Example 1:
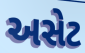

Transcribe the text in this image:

અસેટ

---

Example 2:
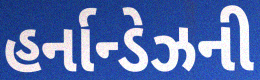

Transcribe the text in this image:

હર્નાન્ડેઝની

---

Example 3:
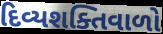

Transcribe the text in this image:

દિવ્યશક્તિવાળો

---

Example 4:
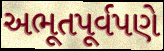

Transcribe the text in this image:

અભૂતપૂર્વપણે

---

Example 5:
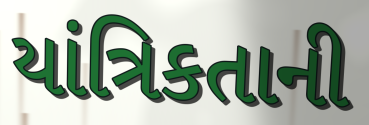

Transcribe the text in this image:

યાંત્રિકતાની